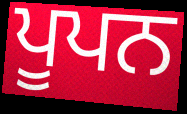
ਪੂਪਨ